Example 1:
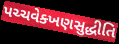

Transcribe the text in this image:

પચ્ચવેક્ખણસુદ્ધીતિ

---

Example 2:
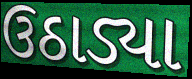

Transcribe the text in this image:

ઉઠાડ્યા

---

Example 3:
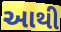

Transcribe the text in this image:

આથી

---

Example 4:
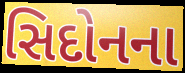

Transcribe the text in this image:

સિદોનના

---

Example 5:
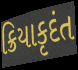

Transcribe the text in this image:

ક્રિયાકૃદંત